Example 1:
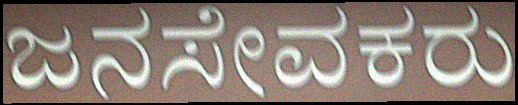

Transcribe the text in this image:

ಜನಸೇವಕರು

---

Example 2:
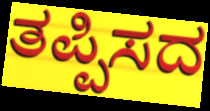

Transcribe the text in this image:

ತಪ್ಪಿಸದ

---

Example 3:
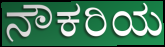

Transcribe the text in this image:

ನೌಕರಿಯ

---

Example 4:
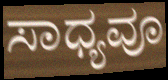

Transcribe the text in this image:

ಸಾಧ್ಯವೂ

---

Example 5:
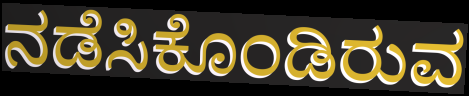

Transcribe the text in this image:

ನಡೆಸಿಕೊಂಡಿರುವ